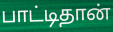
பாட்டிதான்